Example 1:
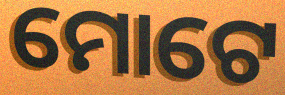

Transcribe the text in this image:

ମୋଟେ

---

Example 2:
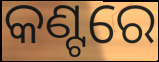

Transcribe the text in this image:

କଣ୍ଟରେ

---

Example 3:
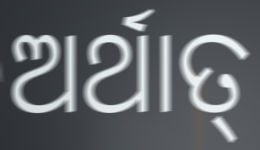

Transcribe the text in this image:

ଅର୍ଥାତ୍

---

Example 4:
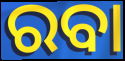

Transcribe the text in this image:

ରବା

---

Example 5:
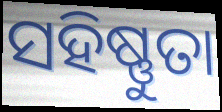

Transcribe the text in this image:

ସହିଷ୍ଣୁତା